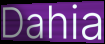
Dahia